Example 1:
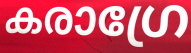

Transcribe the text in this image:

കരാഗ്രേ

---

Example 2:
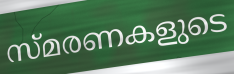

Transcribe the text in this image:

സ്മരണകളുടെ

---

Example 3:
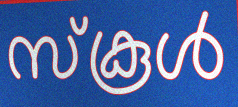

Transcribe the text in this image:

സ്കൂൾ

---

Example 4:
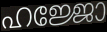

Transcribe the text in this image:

ഹജ്ജോ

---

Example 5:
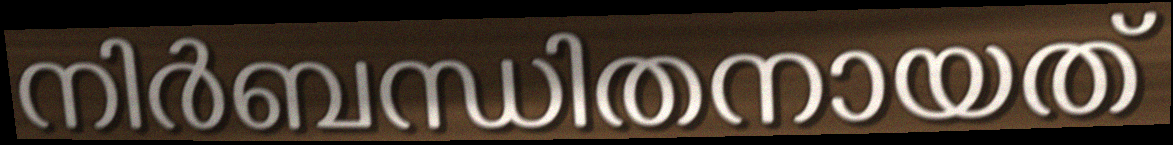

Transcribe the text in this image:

നിർബന്ധിതനായത്